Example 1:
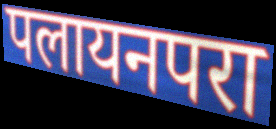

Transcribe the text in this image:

पलायनपरा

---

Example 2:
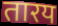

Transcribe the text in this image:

तारय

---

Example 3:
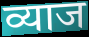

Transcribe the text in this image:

व्याज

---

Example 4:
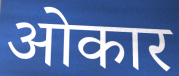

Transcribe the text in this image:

ओकार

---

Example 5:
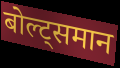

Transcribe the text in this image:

बोल्ट्समान